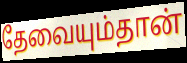
தேவையும்தான்